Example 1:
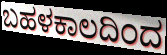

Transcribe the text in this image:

ಬಹಳಕಾಲದಿಂದ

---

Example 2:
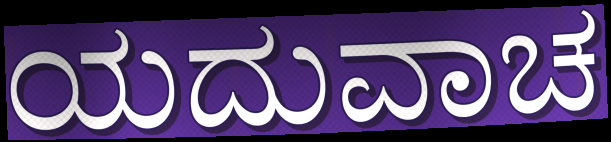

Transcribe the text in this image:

ಯದುವಾಚ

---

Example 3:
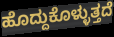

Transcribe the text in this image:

ಹೊದ್ದುಕೊಳ್ಳುತ್ತದೆ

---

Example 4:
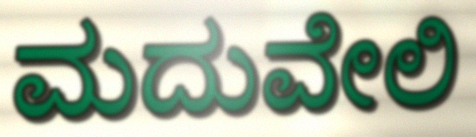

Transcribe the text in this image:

ಮದುವೇಲಿ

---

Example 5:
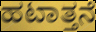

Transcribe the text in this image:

ಹಟಾತ್ತನೆ